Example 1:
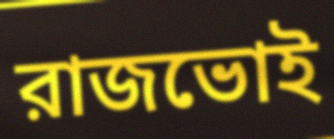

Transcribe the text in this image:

রাজভোই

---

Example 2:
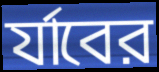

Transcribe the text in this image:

র্যাবের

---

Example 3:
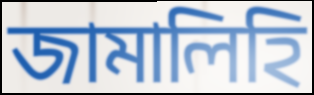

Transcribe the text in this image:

জামালিহি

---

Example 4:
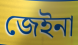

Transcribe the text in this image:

জেইনা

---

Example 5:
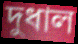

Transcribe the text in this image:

দুধাল